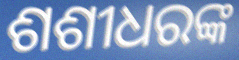
ଶଶୀଧରଙ୍କ